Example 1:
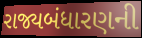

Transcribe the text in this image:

રાજ્યબંધારણની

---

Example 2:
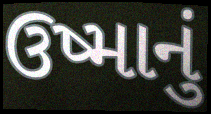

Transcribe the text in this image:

ઉષ્માનું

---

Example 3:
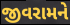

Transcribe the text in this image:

જીવરામને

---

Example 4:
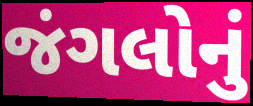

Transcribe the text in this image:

જંગલોનું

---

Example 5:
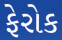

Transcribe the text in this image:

ફેરોક